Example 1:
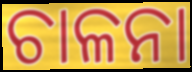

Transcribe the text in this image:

ଚାଳନା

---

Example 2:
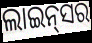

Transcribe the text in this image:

ଲାଇନ୍‌ସର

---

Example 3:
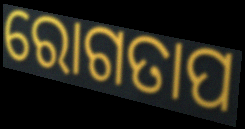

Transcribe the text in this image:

ରୋଗତାପ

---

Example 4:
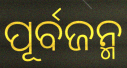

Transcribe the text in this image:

ପୂର୍ବଜନ୍ମ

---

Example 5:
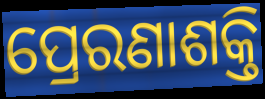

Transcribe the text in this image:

ପ୍ରେରଣାଶକ୍ତି